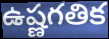
ఉష్ణగతిక